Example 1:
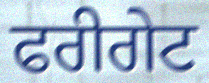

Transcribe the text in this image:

ਫਰੀਗੇਟ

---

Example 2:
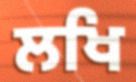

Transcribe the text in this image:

ਲਖਿ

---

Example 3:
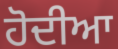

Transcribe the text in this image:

ਹੋਦੀਆ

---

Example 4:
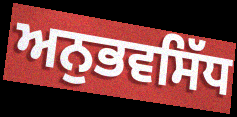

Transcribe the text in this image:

ਅਨੁਭਵਸਿੱਧ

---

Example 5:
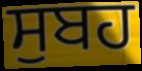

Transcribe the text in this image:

ਸੁਬਹ